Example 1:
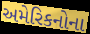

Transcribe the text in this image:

અમેરિકનોના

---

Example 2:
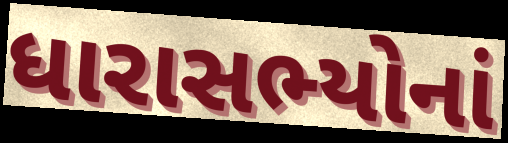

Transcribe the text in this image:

ધારાસભ્યોનાં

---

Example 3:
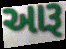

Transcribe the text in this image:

આરૂ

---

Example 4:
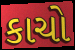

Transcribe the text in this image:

કાચો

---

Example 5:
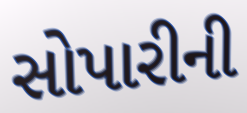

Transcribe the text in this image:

સોપારીની